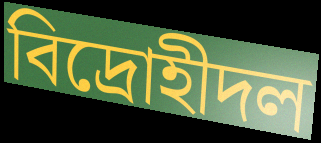
বিদ্রোহীদল